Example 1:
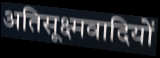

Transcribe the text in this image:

अतिसूक्ष्मवादियों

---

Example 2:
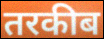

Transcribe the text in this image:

तरकीब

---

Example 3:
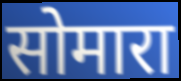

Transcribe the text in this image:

सोमारा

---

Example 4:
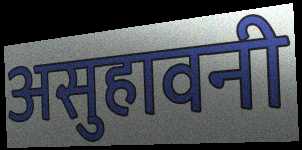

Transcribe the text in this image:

असुहावनी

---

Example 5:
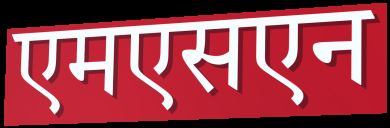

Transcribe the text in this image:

एमएसएन